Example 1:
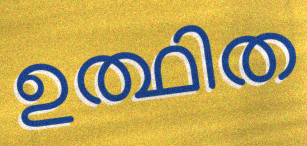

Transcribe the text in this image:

ഉത്ഥിത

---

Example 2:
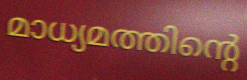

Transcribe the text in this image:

മാധ്യമത്തിന്റെ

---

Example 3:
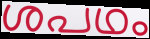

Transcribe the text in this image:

ശപഥം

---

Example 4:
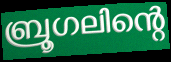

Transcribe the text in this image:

ബ്രൂഗലിന്റെ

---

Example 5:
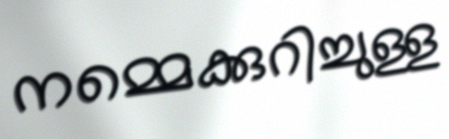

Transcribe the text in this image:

നമ്മെക്കുറിച്ചുള്ള